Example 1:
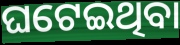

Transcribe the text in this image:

ଘଟେଇଥିବା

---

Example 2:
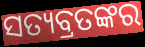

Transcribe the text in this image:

ସତ୍ୟବ୍ରତଙ୍କର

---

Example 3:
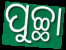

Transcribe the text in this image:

ପୁଚ୍ଛା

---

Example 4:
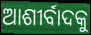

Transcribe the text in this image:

ଆଶୀର୍ବାଦକୁ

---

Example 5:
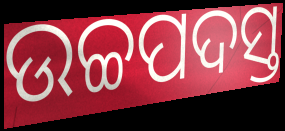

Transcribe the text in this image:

ଉଚ୍ଚପଦସ୍ତ